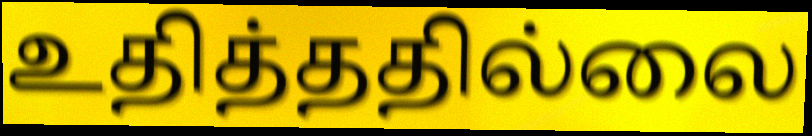
உதித்ததில்லை